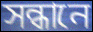
সন্ধানে